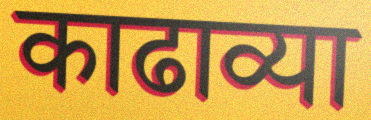
काढाव्या